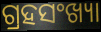
ଗ୍ରହସଂଖ୍ୟା